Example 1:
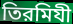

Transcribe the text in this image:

তিরমিযী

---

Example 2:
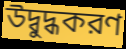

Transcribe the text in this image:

উদ্বুদ্ধকরণ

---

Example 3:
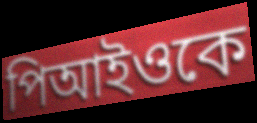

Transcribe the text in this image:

পিআইওকে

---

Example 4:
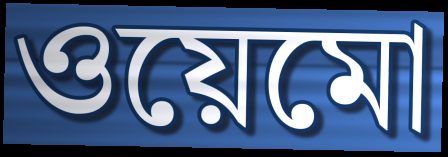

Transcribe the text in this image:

ওয়েমো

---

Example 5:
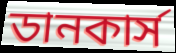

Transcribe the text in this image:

ডানকার্স